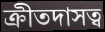
ক্রীতদাসত্ব